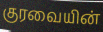
குரவையின்